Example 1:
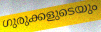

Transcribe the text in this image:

ഗുരുക്കളുടെയും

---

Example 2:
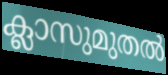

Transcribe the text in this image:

ക്ലാസുമുതൽ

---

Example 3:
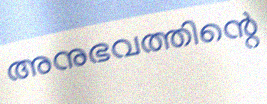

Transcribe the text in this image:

അനുഭവത്തിന്റെ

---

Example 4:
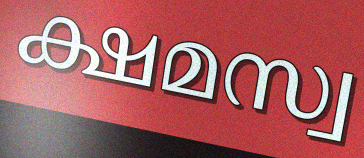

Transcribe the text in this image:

ക്ഷമസ്വ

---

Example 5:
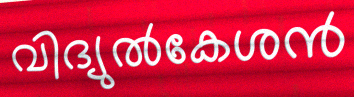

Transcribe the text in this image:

വിദ്യുൽകേശൻ